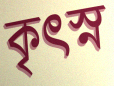
কৃৎস্ন